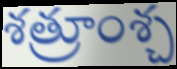
శత్రూంశ్చ